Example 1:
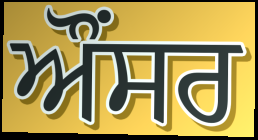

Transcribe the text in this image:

ਔਂਸਰ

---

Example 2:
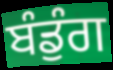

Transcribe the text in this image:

ਬੰਡੁੰਗ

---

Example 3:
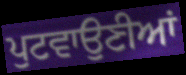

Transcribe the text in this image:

ਪੁਟਵਾਉਣੀਆਂ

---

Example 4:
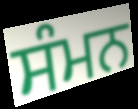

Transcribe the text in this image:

ਸੰਮਨ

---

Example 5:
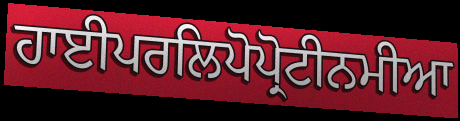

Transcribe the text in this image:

ਹਾਈਪਰਲਿਪੋਪ੍ਰੋਟੀਨਮੀਆ